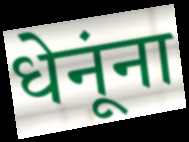
धेनूंना